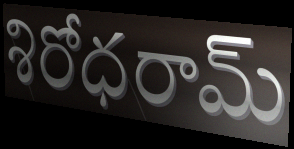
శిరోధరామ్